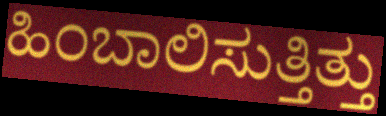
ಹಿಂಬಾಲಿಸುತ್ತಿತ್ತು